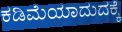
ಕಡಿಮೆಯಾದುದಕ್ಕೆ